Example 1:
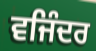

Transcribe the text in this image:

ਵਜਿੰਦਰ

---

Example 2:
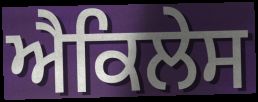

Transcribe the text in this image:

ਐਕਿਲੇਸ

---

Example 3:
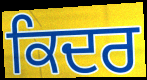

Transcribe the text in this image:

ਕਿਦਰ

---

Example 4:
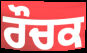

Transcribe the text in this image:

ਰੌਚਕ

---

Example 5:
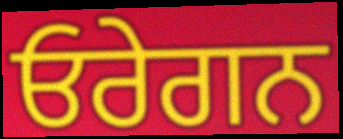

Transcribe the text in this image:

ਓਰੇਗਨ